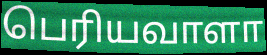
பெரியவாளா